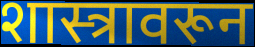
शास्त्रावरून